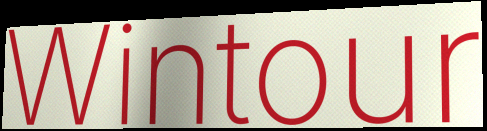
Wintour